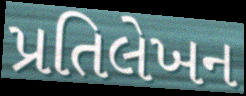
પ્રતિલેખન